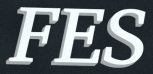
FES